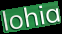
lohia